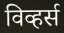
विव्हर्स